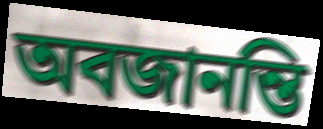
অবজানন্তি